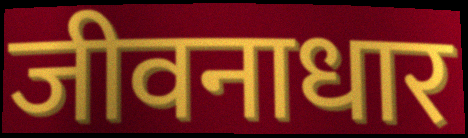
जीवनाधार